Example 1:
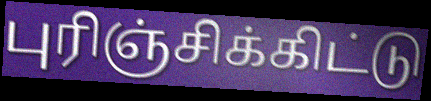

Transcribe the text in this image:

புரிஞ்சிக்கிட்டு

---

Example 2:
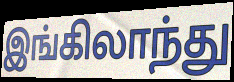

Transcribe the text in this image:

இங்கிலாந்து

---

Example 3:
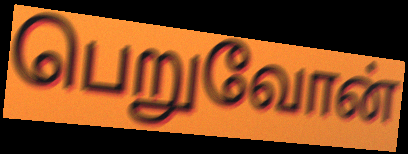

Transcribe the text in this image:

பெறுவோன்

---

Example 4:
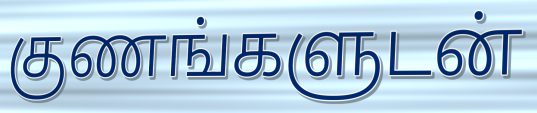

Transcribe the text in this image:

குணங்களுடன்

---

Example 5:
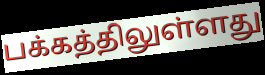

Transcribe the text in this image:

பக்கத்திலுள்ளது